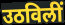
उठविलीं